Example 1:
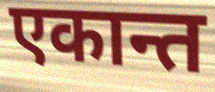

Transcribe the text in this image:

एकान्त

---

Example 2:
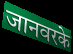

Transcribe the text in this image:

जानवरके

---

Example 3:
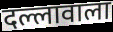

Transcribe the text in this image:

दल्लावाला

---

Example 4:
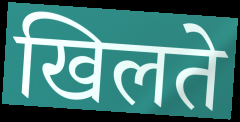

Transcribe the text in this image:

खिलते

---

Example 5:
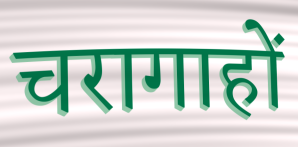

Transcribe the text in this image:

चरागाहों